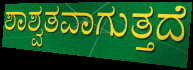
ಶಾಶ್ವತವಾಗುತ್ತದೆ